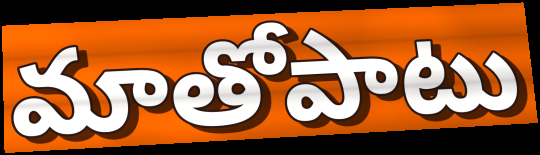
మాతోపాటు